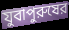
যুবাপুরুষের